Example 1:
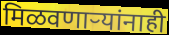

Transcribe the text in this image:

मिळवणाऱ्यांनाही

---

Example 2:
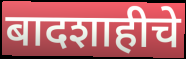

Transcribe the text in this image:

बादशाहीचे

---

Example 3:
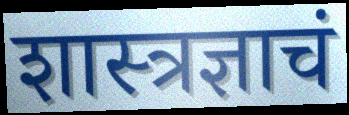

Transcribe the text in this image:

शास्त्रज्ञाचं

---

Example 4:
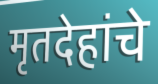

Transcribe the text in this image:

मृतदेहांचे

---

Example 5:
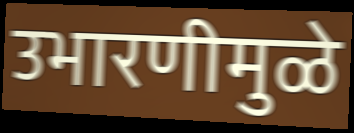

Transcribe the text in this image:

उभारणीमुळे